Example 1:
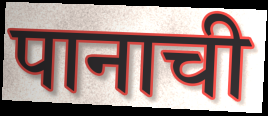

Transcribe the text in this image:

पानाची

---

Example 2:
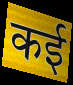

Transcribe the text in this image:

कई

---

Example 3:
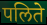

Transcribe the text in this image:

पलिते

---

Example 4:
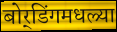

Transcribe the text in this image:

बोर्डिंगमधल्या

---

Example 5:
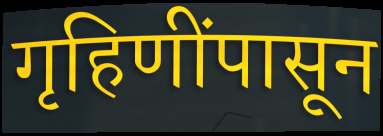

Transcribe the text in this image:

गृहिणींपासून